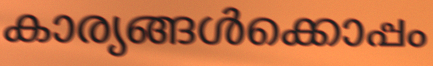
കാര്യങ്ങൾക്കൊപ്പം